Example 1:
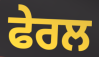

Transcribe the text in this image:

ਫੇਰਲ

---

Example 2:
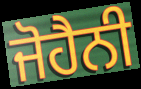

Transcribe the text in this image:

ਜੋਹੈਨੀ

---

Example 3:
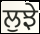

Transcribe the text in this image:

ਲੁਝੇ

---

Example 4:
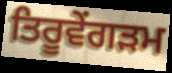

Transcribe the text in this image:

ਤਿਰੂਵੇਂਗੜਮ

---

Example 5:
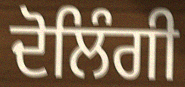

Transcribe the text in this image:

ਦੋਲਿੰਗੀ